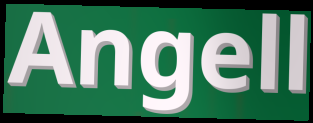
Angell